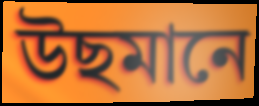
উছমানে